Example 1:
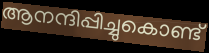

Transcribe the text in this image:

ആനന്ദിപ്പിച്ചുകൊണ്ട്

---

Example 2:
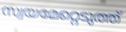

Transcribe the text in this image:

സ്വയമേറ്റെടുത്ത്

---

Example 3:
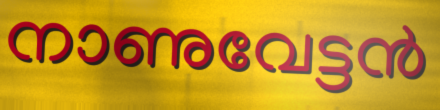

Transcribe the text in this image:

നാണുവേട്ടൻ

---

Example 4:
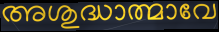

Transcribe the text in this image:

അശുദ്ധാത്മാവേ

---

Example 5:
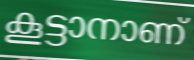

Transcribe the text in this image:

കൂട്ടാനാണ്